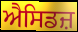
ਐਸਿਡਜ਼